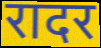
रादर